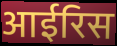
आईरिस